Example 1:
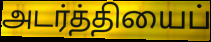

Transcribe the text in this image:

அடர்த்தியைப்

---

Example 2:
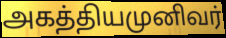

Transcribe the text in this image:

அகத்தியமுனிவர்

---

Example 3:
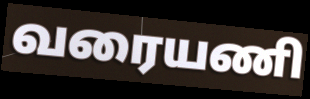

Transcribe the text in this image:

வரையணி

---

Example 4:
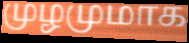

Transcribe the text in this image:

முழமுமாக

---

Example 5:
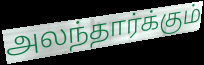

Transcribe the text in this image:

அலந்தார்க்கும்